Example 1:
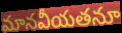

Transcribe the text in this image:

మానవీయతనూ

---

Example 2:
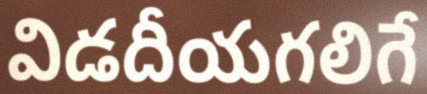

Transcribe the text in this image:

విడదీయగలిగే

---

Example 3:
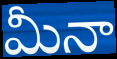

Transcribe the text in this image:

మీనా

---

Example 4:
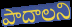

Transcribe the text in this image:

పాదాలని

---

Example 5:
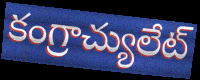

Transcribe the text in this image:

కంగ్రాచ్యులేట్